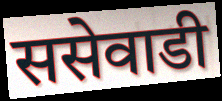
ससेवाडी